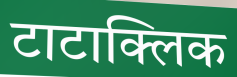
टाटाक्लिक